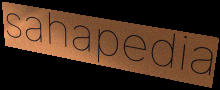
sahapedia